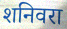
शनिवरा